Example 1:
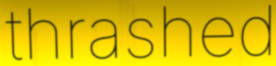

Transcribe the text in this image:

thrashed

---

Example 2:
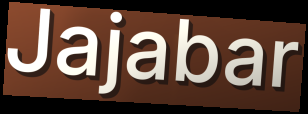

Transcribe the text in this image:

Jajabar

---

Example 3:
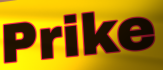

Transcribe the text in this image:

Prike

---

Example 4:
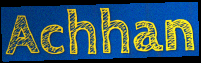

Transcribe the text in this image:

Achhan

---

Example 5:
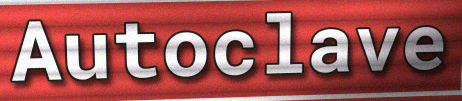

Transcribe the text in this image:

Autoclave